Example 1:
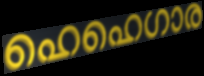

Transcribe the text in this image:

ഹെഹെഗാര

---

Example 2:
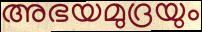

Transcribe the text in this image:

അഭയമുദ്രയും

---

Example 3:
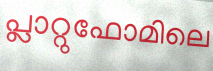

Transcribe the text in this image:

പ്ലാറ്റുഫോമിലെ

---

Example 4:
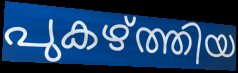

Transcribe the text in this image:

പുകഴ്ത്തിയ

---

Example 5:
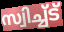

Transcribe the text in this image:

സ്വിച്ച്ട്